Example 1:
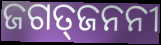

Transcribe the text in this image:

ଜଗତ୍‍ଜନନୀ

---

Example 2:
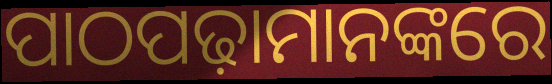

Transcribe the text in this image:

ପାଠପଢ଼ାମାନଙ୍କରେ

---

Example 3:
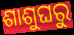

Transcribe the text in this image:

ଶାଶୁଘରୁ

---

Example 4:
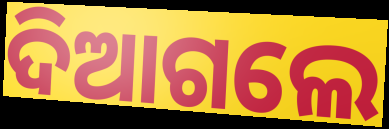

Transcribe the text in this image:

ଦିଆଗଲେ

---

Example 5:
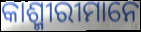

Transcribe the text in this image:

କାଶ୍ମୀରୀମାନେ